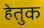
हेतुक